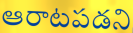
ఆరాటపడని